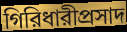
গিরিধারীপ্রসাদ